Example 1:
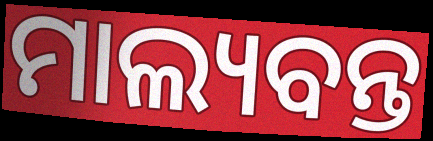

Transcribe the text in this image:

ମାଲ୍ୟବନ୍ତ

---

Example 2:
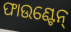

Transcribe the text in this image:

ଫାଉଣ୍ଟେନ୍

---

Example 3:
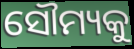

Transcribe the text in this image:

ସୌମ୍ୟକୁ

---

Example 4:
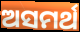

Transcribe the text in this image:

ଅସମର୍ଥ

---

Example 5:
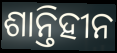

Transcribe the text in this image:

ଶାନ୍ତିହୀନ